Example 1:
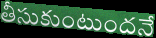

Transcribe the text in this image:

తీసుకుంటుందనే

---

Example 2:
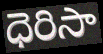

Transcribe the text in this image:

ధెరిసా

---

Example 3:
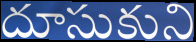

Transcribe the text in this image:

దూసుకుని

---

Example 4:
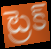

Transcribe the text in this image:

ట్రెక్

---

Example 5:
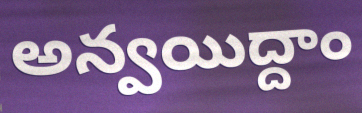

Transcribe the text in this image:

అన్వయిద్దాం